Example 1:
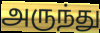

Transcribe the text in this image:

அருந்து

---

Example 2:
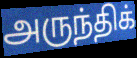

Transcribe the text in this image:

அருந்திக்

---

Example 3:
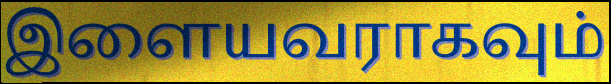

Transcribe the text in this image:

இளையவராகவும்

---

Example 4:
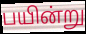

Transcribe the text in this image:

பயின்று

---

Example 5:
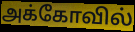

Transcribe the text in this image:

அக்கோவில்